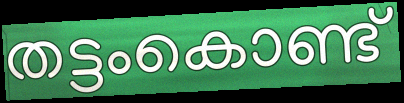
തട്ടംകൊണ്ട്